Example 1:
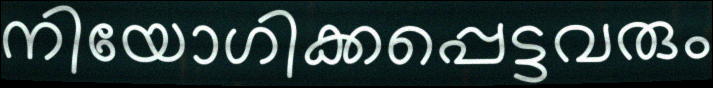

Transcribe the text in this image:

നിയോഗിക്കപ്പെട്ടവരും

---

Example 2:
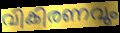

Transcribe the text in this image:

വികിരണവും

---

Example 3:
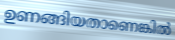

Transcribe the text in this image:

ഉണങ്ങിയതാണെങ്കിൽ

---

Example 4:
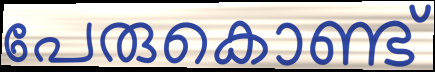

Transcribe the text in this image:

പേരുകൊണ്ട്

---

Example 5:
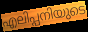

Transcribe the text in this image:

എലിപ്പനിയുടെ